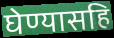
घेण्यासहि